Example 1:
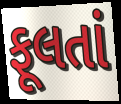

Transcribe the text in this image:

ફૂલતાં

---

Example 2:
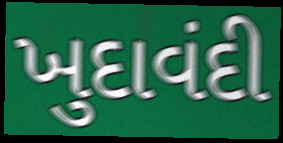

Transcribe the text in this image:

ખુદાવંદી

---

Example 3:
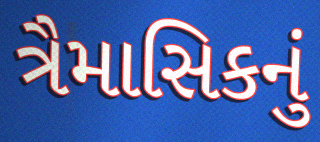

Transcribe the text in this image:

ત્રૈમાસિકનું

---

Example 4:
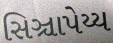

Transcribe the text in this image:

સિઞ્ચાપેય્ય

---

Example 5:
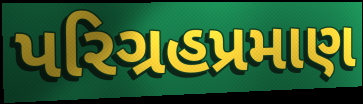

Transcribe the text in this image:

પરિગ્રહપ્રમાણ